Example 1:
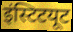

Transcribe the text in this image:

इंस्टिटयूट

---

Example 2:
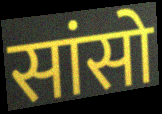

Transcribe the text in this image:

सांसो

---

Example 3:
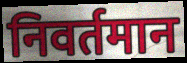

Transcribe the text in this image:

निवर्तमान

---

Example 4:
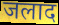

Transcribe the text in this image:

जलाद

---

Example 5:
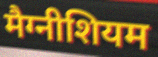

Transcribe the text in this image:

मैग्नीशियम